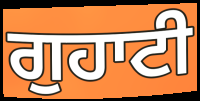
ਗੁਹਾਟੀ